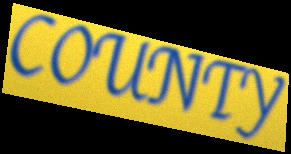
COUNTY